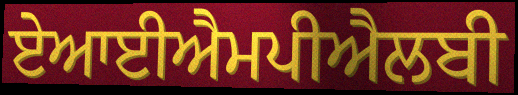
ਏਆਈਐਮਪੀਐਲਬੀ